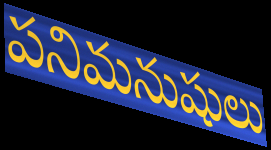
పనిమనుషులు